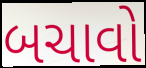
બચાવો